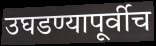
उघडण्यापूर्वीच